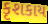
કૃશકાય